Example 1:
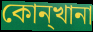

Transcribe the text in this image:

কোন্খানা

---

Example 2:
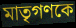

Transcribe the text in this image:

মাতৃগণকে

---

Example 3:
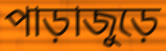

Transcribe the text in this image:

পাড়াজুড়ে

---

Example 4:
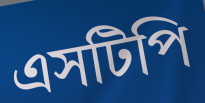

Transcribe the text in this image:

এসটিপি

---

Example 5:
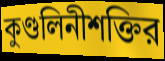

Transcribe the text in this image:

কুণ্ডলিনীশক্তির